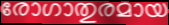
രോഗാതുരമായ